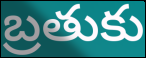
బ్రతుకు